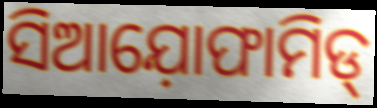
ସିଆଯ଼ୋଫାମିଡ୍